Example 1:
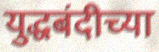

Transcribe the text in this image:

युद्धबंदीच्या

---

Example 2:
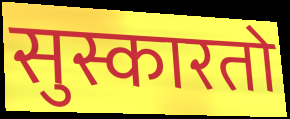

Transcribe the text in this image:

सुस्कारतो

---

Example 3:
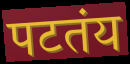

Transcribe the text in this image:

पटतंय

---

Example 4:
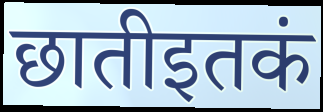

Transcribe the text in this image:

छातीइतकं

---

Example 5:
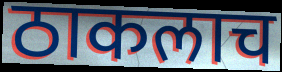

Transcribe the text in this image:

ठाकलाच